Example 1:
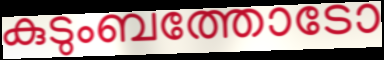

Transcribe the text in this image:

കുടുംബത്തോടോ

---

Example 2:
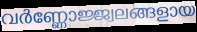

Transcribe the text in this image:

വർണ്ണോജ്ജ്വലങ്ങളായ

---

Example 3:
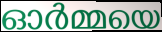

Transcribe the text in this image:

ഓർമ്മയെ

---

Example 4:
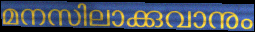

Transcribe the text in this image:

മനസിലാക്കുവാനും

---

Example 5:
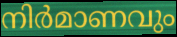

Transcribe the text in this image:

നിർമാണവും